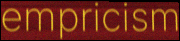
empricism